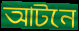
আটনে